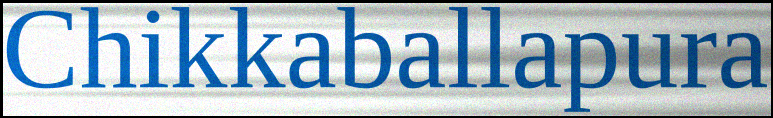
Chikkaballapura